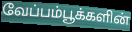
வேப்பம்பூக்களின்